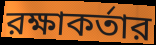
রক্ষাকর্তার